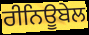
ਰੀਨਿਊਬੇਲ